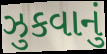
ઝુકવાનું